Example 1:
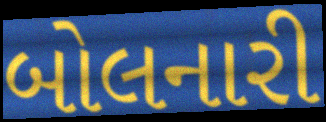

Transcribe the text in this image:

બોલનારી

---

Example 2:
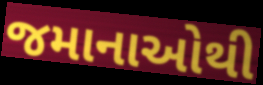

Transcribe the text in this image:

જમાનાઓથી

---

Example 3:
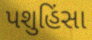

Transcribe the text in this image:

પશુહિંસા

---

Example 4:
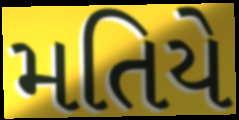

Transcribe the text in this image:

મતિયે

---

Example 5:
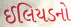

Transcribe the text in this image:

ઈલિયડનો